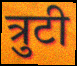
त्रुटी